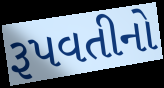
રૂપવતીનો